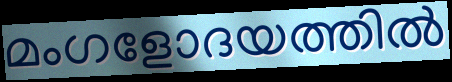
മംഗളോദയത്തിൽ